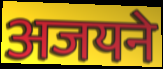
अजयने